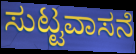
ಸುಟ್ಟವಾಸನೆ